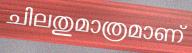
ചിലതുമാത്രമാണ്